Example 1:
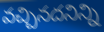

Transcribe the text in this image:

వచ్చినదనిన్ని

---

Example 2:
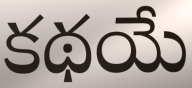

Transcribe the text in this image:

కథయే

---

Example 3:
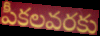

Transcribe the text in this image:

పీకలవరకు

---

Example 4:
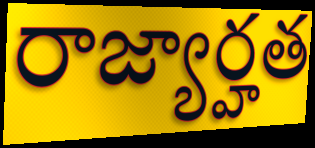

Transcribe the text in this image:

రాజ్యార్హత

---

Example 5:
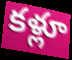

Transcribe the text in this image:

కళ్లూ